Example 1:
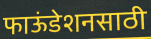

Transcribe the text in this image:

फाऊंडेशनसाठी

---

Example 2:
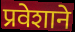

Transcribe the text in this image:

प्रवेशाने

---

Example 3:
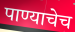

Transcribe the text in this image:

पाण्याचेच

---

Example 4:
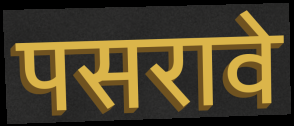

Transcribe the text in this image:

पसरावे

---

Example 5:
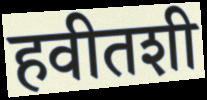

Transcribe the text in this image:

हवीतशी